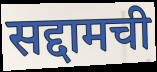
सद्दामची